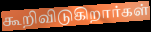
கூறிவிடுகிறார்கள்